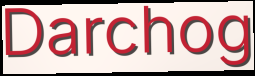
Darchog